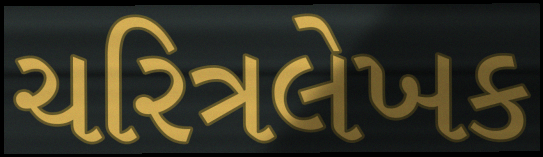
ચરિત્રલેખક